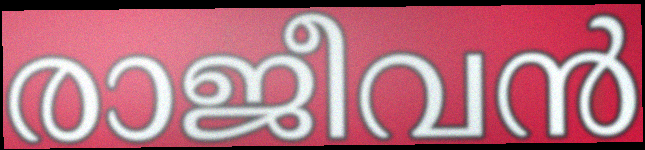
രാജീവൻ